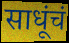
साधूंचं